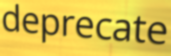
deprecate